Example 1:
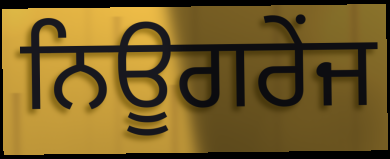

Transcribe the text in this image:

ਨਿਊਗਰੇਂਜ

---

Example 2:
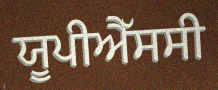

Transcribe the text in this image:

ਯੂਪੀਐੱਸਸੀ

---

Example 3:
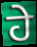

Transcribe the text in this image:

ਹੇ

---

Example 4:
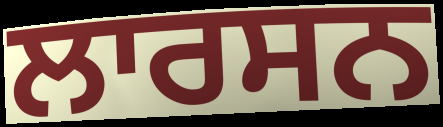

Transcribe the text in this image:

ਲਾਰਸਨ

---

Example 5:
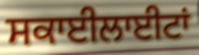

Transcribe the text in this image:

ਸਕਾਈਲਾਈਟਾਂ